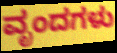
ವೃಂದಗಳು